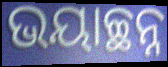
ଭୟାଚ୍ଛନ୍ନ